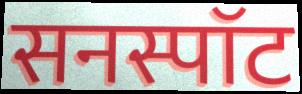
सनस्पॉट